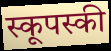
स्कूपस्की